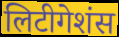
लिटीगेशंस